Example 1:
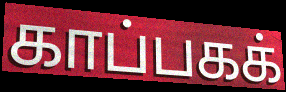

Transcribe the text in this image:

காப்பகக்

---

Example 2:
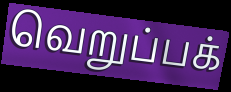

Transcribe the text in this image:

வெறுப்பக்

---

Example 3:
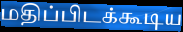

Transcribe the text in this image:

மதிப்பிடக்கூடிய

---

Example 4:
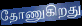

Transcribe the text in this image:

தோணுகிறது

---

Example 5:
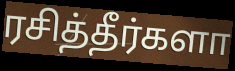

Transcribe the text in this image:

ரசித்தீர்களா